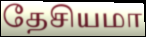
தேசியமா